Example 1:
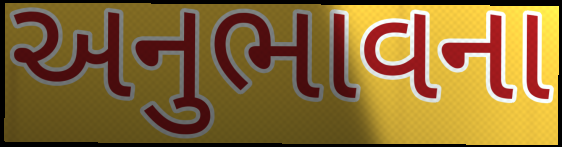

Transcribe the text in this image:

અનુભાવના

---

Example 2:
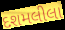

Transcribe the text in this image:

દશમલીલા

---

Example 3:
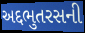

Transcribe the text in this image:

અદ્દભુતરસની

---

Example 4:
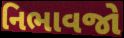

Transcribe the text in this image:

નિભાવજો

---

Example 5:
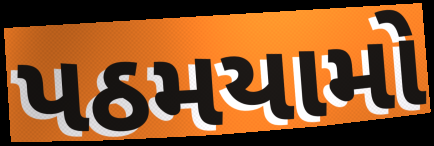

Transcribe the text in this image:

પઠમયામો